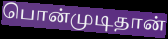
பொன்முடிதான்